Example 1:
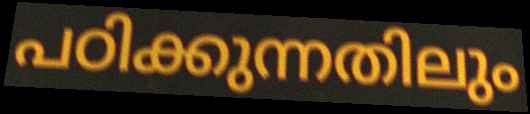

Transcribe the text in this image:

പഠിക്കുന്നതിലും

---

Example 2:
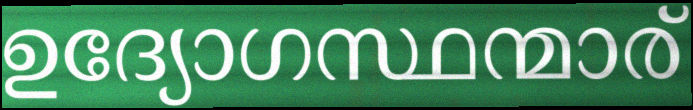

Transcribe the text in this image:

ഉദ്യോഗസ്ഥന്മാര്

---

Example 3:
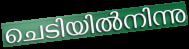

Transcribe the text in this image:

ചെടിയിൽനിന്നു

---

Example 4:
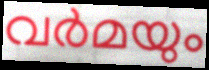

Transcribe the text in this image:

വർമയും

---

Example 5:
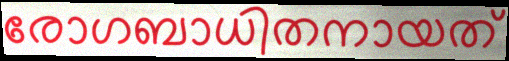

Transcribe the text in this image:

രോഗബാധിതനായത്